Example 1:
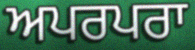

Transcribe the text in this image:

ਅਪਰਪਰਾ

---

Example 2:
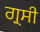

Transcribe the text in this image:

ਗ੍ਰਸੀ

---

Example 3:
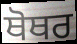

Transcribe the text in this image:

ਥੋਥਰ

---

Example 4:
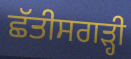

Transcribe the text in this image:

ਛੱਤੀਸਗੜ੍ਹੀ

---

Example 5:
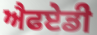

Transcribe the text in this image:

ਐਫਏਡੀ